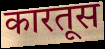
कारतूस